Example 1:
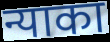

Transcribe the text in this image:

न्याका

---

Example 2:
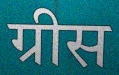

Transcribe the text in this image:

ग्रीस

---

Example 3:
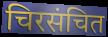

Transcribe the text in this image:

चिरसंचित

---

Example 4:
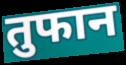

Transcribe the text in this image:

तुफान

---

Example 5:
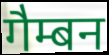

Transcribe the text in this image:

गैम्बन